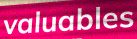
valuables